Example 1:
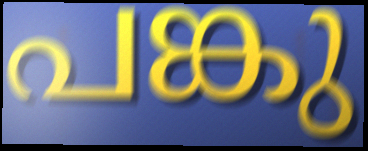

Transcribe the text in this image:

പങ്കു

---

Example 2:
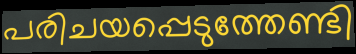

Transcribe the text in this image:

പരിചയപ്പെടുത്തേണ്ടി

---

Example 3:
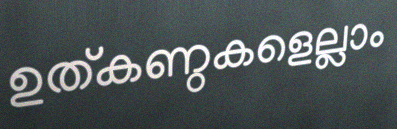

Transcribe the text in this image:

ഉത്കണ്ഠകളെല്ലാം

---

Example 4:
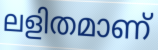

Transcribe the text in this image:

ലളിതമാണ്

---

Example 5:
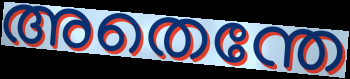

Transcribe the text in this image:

അതെന്തേ